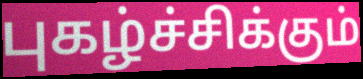
புகழ்ச்சிக்கும்